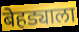
बेहड्याला